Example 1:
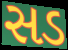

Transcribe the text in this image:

સડ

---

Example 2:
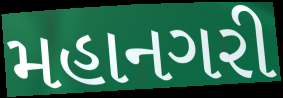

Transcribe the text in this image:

મહાનગરી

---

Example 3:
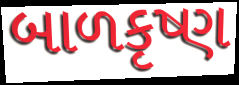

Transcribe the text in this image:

બાળકૃષ્ણ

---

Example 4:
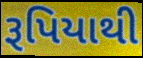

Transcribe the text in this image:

રૂપિયાથી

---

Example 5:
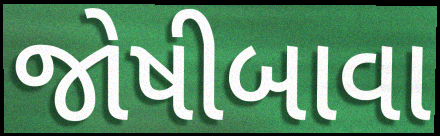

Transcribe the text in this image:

જોષીબાવા